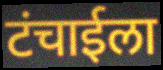
टंचाईला